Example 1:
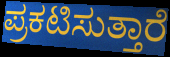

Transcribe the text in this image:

ಪ್ರಕಟಿಸುತ್ತಾರೆ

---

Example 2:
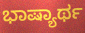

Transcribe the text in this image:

ಭಾಷ್ಯಾರ್ಥ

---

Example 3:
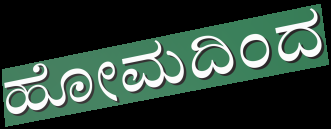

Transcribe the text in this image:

ಹೋಮದಿಂದ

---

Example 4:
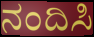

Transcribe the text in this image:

ನಂದಿಸಿ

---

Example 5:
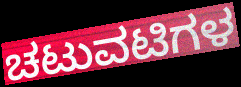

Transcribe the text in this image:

ಚಟುವಟಿಗಳ